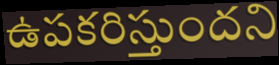
ఉపకరిస్తుందని